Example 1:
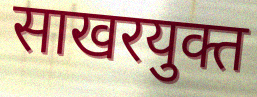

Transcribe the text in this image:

साखरयुक्त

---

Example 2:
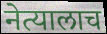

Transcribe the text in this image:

नेत्यालाच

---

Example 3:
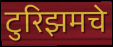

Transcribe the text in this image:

टुरिझमचे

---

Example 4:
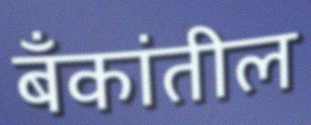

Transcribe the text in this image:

बॅंकांतील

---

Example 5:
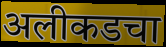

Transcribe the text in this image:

अलीकडचा